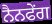
ਨੈਨਫੇਂਗ